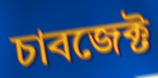
চাবজেক্ট